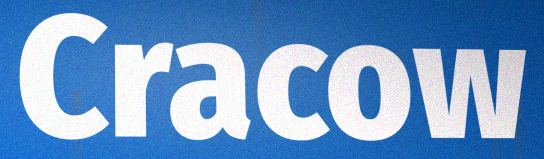
Cracow